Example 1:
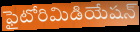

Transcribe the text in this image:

ఫైటోరిమిడియేషన్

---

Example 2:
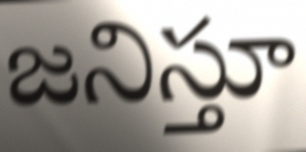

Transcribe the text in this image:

జనిస్తూ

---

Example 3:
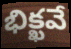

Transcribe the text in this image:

భిక్ఖవే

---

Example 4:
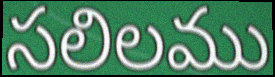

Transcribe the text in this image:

సలిలము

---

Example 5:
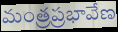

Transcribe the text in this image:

మంత్రప్రభావేణ